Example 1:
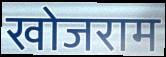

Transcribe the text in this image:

खोजराम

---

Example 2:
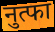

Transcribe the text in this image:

नुत्फा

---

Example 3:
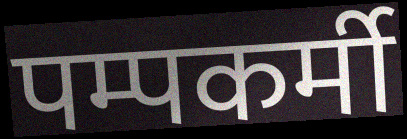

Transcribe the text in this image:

पम्पकर्मी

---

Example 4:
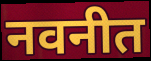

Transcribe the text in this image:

नवनीत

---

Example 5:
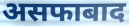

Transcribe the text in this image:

असफाबाद